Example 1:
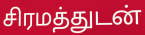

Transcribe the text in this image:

சிரமத்துடன்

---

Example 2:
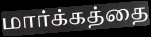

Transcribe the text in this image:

மார்க்கத்தை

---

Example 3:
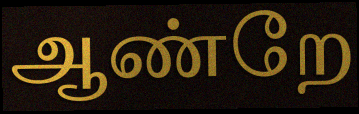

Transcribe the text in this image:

ஆண்றே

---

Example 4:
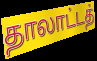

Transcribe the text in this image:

தாலாட்டத்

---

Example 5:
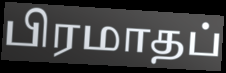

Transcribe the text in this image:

பிரமாதப்